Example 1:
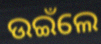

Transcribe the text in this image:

ଉଇଁଲେ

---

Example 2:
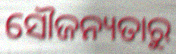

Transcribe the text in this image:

ସୌଜନ୍ୟତାରୁ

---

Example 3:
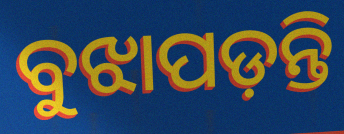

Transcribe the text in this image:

ବୁଝାପଡ଼ନ୍ତି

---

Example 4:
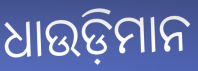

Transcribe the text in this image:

ଧାଉଡ଼ିମାନ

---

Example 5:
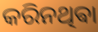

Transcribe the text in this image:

କରିନଥିଵା